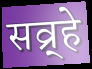
सव्र्हे